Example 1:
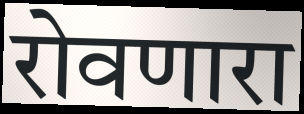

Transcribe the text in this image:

रोवणारा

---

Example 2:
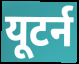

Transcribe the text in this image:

यूटर्न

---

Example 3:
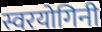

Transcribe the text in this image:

स्वरयोगिनी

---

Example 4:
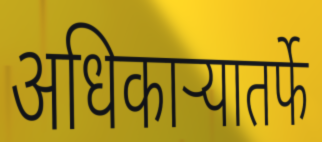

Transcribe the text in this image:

अधिकाऱ्यातर्फे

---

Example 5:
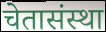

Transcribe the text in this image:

चेतासंस्था